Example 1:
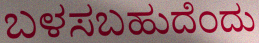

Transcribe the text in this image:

ಬಳಸಬಹುದೆಂದು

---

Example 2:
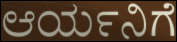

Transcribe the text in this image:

ಆರ್ಯನಿಗೆ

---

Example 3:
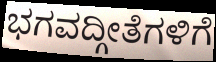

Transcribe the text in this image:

ಭಗವದ್ಗೀತೆಗಳಿಗೆ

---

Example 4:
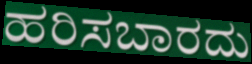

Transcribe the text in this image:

ಹರಿಸಬಾರದು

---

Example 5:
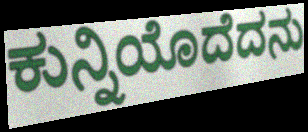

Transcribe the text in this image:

ಕುನ್ನಿಯೊದೆದನು